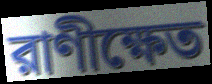
রাণীক্ষেত